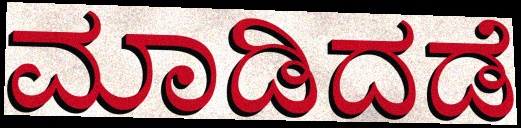
ಮಾಡಿದಡೆ